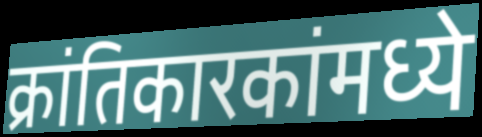
क्रांतिकारकांमध्ये